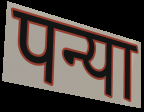
पन्या